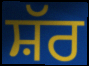
ਸ਼ੱਰ